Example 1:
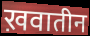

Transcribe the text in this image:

ख़वातीन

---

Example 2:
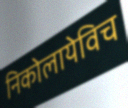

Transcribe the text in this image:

निकोलायेविच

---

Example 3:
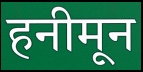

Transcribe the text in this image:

हनीमून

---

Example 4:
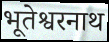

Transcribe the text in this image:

भूतेश्वरनाथ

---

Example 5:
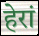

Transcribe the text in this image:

हेरां